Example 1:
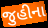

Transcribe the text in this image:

જુહીના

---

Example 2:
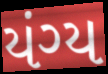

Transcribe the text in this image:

યંગ્ય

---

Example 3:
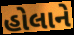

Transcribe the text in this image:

હોલાને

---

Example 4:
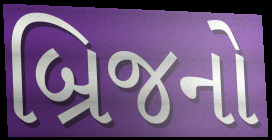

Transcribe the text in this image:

બ્રિજનો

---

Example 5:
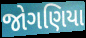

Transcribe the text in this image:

જોગણિયા